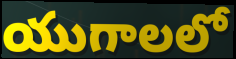
యుగాలలో